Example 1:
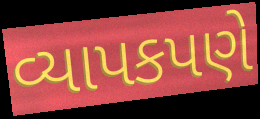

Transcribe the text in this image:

વ્યાપકપણે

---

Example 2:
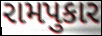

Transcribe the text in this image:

રામપુકાર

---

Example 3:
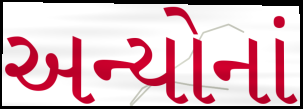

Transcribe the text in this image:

અન્યોનાં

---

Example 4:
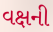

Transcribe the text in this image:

વક્ષની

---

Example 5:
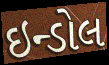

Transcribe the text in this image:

ઇન્ડોલ